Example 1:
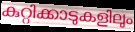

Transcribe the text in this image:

കുറ്റിക്കാടുകളിലും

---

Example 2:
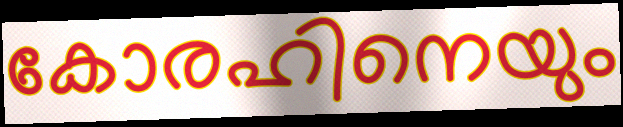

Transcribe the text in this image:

കോരഹിനെയും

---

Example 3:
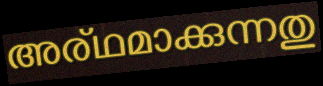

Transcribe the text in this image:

അര്ഥമാക്കുന്നതു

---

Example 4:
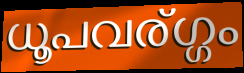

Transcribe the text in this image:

ധൂപവര്ഗ്ഗം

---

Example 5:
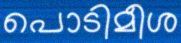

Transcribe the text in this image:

പൊടിമീശ